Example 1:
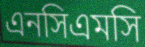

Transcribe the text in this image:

এনসিএমসি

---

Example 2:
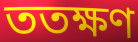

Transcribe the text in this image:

ততক্ষণ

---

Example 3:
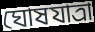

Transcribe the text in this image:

ঘোষযাত্রা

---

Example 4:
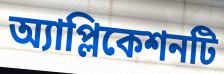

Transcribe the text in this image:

অ্যাপ্লিকেশনটি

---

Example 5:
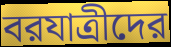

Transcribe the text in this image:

বরযাত্রীদের